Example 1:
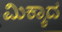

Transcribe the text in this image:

ಮಿಕ್ಕಾದ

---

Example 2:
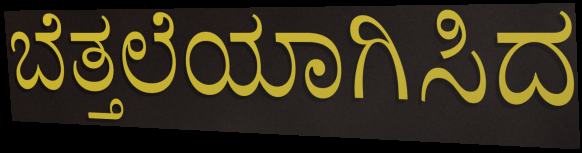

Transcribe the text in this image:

ಬೆತ್ತಲೆಯಾಗಿಸಿದ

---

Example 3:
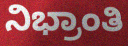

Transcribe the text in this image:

ನಿಭ್ರಾಂತಿ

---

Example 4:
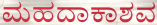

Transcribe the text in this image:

ಮಹದಾಕಾಶವ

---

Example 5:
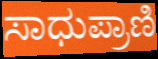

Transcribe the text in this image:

ಸಾಧುಪ್ರಾಣಿ